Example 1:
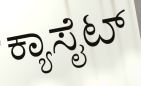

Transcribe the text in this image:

ಕ್ಯಾಸೈಟ್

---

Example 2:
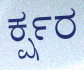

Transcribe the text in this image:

ರ್ಕ್ಷರ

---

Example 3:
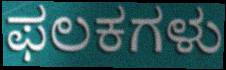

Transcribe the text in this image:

ಫಲಕಗಳು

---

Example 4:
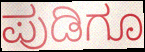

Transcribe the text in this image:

ಪುಡಿಗೂ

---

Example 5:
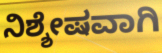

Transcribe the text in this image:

ನಿಶ್ಶೇಷವಾಗಿ